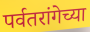
पर्वतरांगेच्या